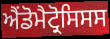
ਐਂਡੋਮੈਟ੍ਰੋਸਿਸਸ